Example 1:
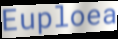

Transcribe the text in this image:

Euploea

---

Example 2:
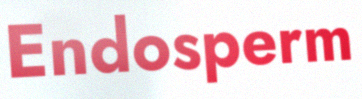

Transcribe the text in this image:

Endosperm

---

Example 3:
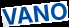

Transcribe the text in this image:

VANO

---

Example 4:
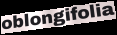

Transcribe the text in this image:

oblongifolia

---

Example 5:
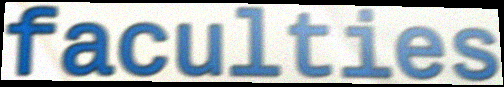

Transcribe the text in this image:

faculties